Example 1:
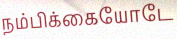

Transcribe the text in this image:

நம்பிக்கையோடே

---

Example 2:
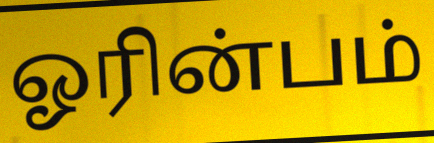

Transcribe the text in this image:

ஓரின்பம்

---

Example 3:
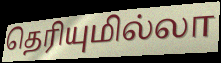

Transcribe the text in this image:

தெரியுமில்லா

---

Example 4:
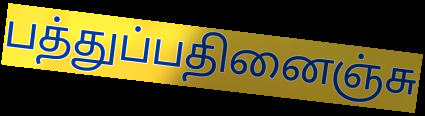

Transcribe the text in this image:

பத்துப்பதினைஞ்சு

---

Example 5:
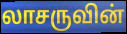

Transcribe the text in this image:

லாசருவின்